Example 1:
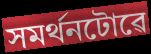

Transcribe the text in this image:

সমৰ্থনটোৱে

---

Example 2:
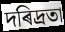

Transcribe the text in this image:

দৰিদ্ৰতা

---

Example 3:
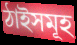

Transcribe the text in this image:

ঠাইসমূহ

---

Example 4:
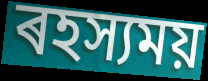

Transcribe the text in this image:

ৰহস্যময়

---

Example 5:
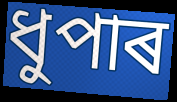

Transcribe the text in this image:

ধুপাৰ